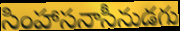
సింహాసనాసీనుడగు